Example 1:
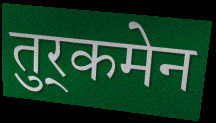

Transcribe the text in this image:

तुर्कमेन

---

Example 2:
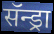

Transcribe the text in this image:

सॅन्ड्रा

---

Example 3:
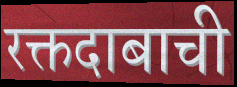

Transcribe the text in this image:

रक्तदाबाची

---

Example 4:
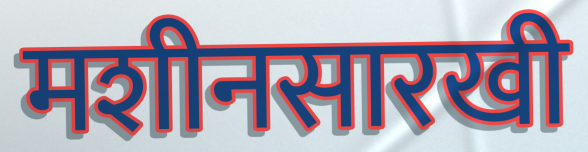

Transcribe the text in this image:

मशीनसारखी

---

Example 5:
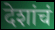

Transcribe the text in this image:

देशांचं